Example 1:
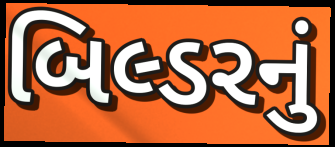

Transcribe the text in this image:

બિલ્ડરનું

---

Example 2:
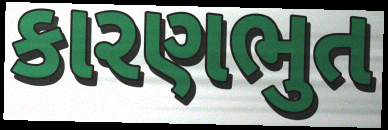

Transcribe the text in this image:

કારણભુત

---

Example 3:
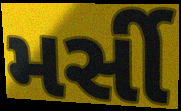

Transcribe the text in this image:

મર્સી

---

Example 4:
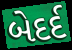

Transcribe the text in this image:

બેદર્દ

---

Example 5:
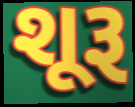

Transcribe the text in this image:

શૂરૂ